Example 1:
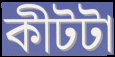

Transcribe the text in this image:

কীটটা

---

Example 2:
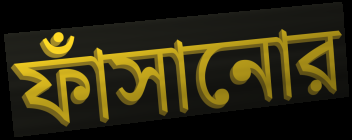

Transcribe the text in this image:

ফাঁসানোর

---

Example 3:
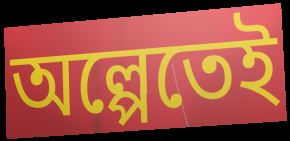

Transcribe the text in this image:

অল্পেতেই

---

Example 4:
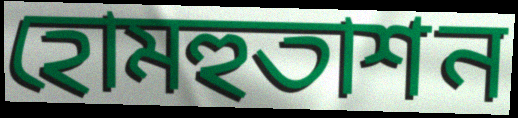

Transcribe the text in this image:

হোমহুতাশন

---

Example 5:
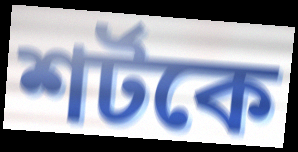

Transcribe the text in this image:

শর্টকে